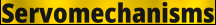
Servomechanisms